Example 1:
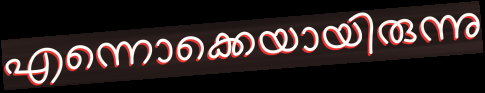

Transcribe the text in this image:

എന്നൊക്കെയായിരുന്നു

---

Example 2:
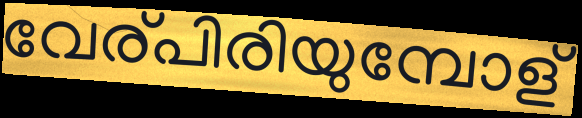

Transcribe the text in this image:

വേര്പിരിയുമ്പോള്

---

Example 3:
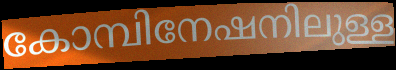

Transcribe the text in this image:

കോമ്പിനേഷനിലുള്ള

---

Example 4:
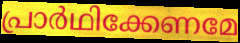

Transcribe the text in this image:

പ്രാർഥിക്കേണമേ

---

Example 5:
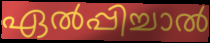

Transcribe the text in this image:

ഏൽപ്പിച്ചാൽ